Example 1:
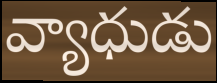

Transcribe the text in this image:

వ్యాధుడు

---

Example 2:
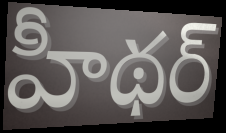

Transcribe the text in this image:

హీథర్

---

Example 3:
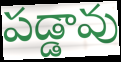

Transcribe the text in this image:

పడ్డావు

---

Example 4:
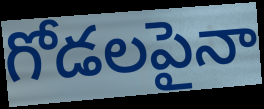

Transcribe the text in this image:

గోడలపైనా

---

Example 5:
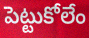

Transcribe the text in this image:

పెట్టుకోలేం